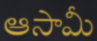
ఆసామీ